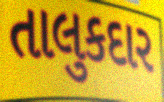
તાલુકદાર